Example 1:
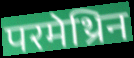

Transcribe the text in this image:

परमेथ्रिन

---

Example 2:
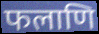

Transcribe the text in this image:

फलाणि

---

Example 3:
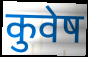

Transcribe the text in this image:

कुवेष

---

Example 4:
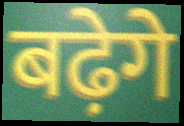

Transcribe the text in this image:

बढ़ेगे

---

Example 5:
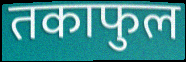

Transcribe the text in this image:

तकाफुल